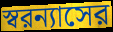
স্বরন্যাসের